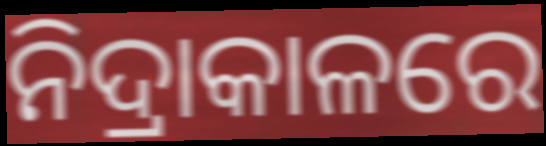
ନିଦ୍ରାକାଳରେ